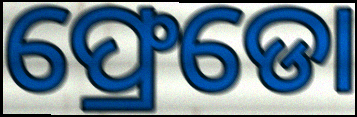
ଫ୍ରେଡୋ